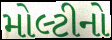
મોલ્ટીનો